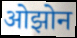
ओझोन